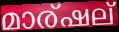
മാര്ഷല്